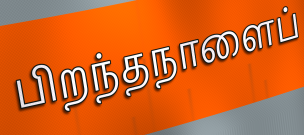
பிறந்தநாளைப்